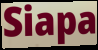
Siapa